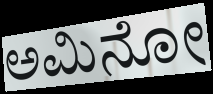
ಅಮಿನೋ